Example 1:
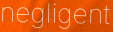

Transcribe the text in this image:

negligent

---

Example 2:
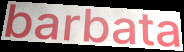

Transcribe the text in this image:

barbata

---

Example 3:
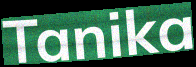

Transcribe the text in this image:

Tanika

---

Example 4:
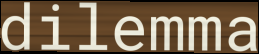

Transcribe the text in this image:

dilemma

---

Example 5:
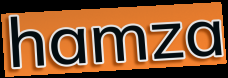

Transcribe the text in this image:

hamza